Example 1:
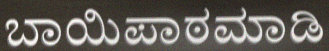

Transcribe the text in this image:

ಬಾಯಿಪಾಠಮಾಡಿ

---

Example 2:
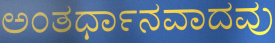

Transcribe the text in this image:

ಅಂತರ್ಧಾನವಾದವು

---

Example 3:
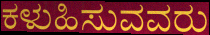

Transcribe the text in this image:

ಕಳುಹಿಸುವವರು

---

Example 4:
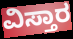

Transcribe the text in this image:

ವಿಸ್ತಾರ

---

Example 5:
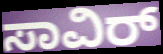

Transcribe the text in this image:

ಸಾವಿರ್